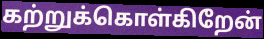
கற்றுக்கொள்கிறேன்